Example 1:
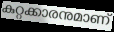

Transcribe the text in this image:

കുറ്റക്കാരനുമാണ്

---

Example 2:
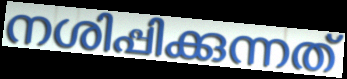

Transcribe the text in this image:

നശിപ്പിക്കുന്നത്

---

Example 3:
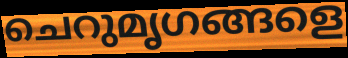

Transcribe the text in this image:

ചെറുമൃഗങ്ങളെ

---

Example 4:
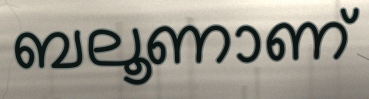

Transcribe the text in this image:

ബലൂണാണ്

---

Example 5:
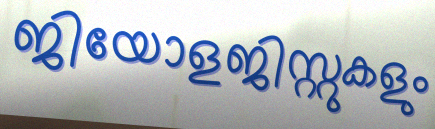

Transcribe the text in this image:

ജിയോളജിസ്റ്റുകളും